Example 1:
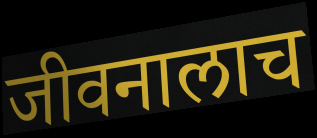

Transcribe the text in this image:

जीवनालाच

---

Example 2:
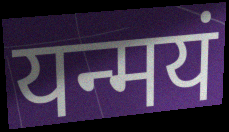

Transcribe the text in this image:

यन्मयं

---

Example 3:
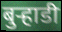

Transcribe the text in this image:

बुऱ्हाडी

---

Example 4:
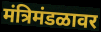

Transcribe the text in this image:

मंत्रिमंडळावर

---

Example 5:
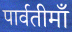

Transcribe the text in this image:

पार्वतीमाँ